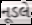
નૂડલે